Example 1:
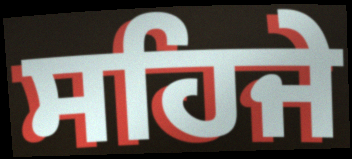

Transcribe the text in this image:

ਸਹਿਜੇ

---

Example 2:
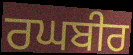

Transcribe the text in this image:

ਰਘਬੀਰ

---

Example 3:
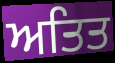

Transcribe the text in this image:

ਅਤਿਤ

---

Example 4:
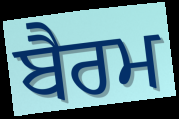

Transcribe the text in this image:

ਬੈਰਮ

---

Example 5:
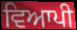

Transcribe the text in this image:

ਵਿਆਪੀ